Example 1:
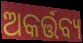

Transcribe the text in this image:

ଅକର୍ତ୍ତବ୍ୟ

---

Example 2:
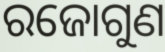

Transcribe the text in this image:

ରଜୋଗୁଣ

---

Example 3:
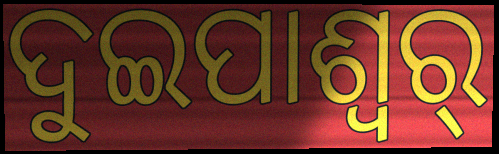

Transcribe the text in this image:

ଦୁଇପାଶ୍ୱର୍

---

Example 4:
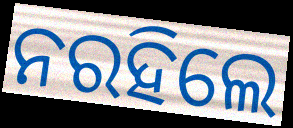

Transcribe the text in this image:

ନରହିଲେ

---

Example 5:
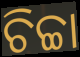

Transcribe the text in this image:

ଚିଚ୍ଚା